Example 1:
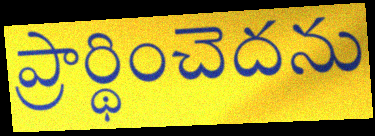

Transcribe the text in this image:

ప్రార్థించెదను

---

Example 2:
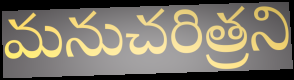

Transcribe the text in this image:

మనుచరిత్రని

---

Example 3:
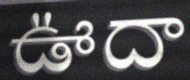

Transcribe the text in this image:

ఊదా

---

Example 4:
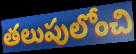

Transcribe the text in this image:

తలుపులోంచి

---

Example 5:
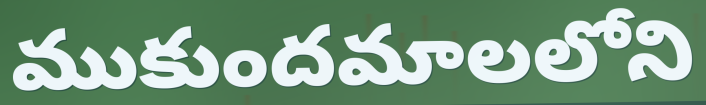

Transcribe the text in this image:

ముకుందమాలలోని